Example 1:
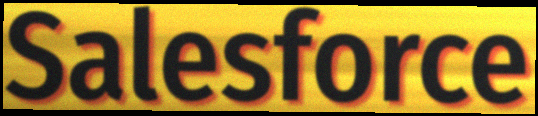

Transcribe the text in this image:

Salesforce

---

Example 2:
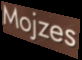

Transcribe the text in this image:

Mojzes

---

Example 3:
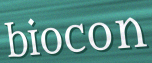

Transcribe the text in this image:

biocon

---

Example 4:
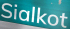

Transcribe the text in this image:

Sialkot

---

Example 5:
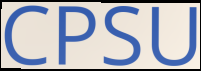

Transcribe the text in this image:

CPSU